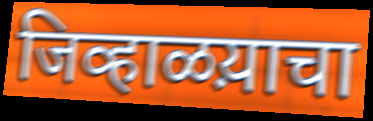
जिव्हाळय़ाचा